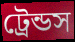
ট্রেন্ডস